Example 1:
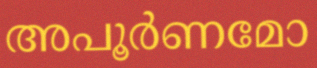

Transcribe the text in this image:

അപൂർണമോ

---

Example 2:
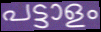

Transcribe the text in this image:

പട്ടാളം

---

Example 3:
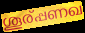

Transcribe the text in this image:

ശൂര്പ്പണഖ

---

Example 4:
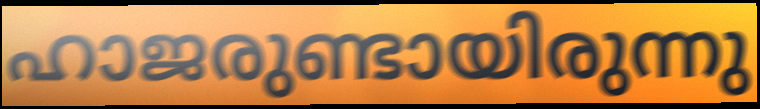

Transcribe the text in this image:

ഹാജരുണ്ടായിരുന്നു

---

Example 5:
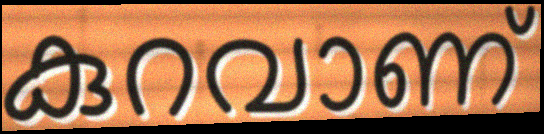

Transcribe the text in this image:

കുറവാണ്